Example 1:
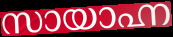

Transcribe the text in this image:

സായാഹ്ന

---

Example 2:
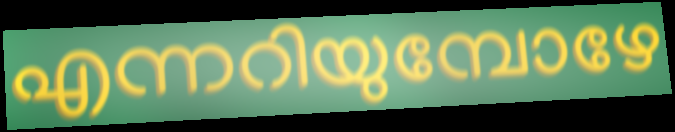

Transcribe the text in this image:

എന്നറിയുമ്പോഴേ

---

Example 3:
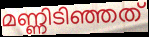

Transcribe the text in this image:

മണ്ണിടിഞ്ഞത്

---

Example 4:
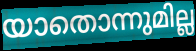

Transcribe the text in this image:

യാതൊന്നുമില്ല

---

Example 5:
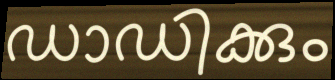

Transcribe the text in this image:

ഡാഡിക്കും